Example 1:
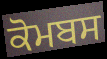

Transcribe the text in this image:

ਕੋਮਬਸ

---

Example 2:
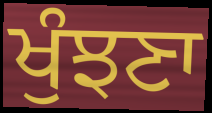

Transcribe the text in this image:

ਖੁੰਝਣਾ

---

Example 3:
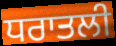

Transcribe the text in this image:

ਧਰਾਤਲੀ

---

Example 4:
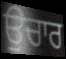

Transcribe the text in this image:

ਉਚਾਰ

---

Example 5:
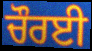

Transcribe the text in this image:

ਚੌਰਈ